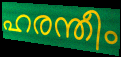
ഹരന്തീം